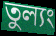
তুল্যং